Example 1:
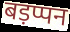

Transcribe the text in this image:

बड़प्पन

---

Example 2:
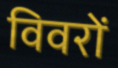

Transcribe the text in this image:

विवरों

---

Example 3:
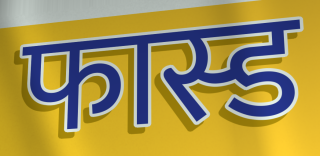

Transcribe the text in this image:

फास्ड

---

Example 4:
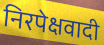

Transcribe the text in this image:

निरपेक्षवादी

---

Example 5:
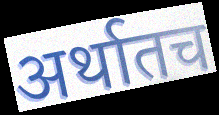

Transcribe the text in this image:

अर्थातच